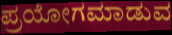
ಪ್ರಯೋಗಮಾಡುವ